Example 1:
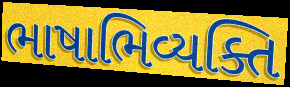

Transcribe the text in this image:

ભાષાભિવ્યક્તિ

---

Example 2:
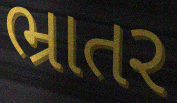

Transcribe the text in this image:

ભ્રાતર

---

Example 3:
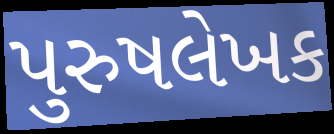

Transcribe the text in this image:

પુરુષલેખક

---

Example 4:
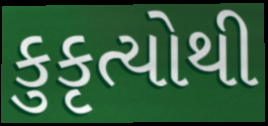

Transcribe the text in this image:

કુકૃત્યોથી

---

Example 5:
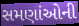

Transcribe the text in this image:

સમણાંઓની